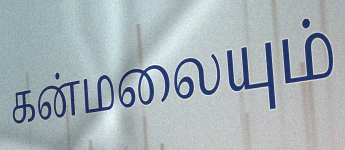
கன்மலையும்